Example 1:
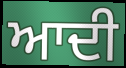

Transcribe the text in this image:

ਆਦੀ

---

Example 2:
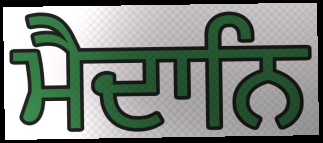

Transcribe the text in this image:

ਮੈਦਾਨਿ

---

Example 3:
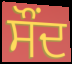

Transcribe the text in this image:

ਸੌਂਦ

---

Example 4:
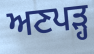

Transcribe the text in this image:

ਅਣਪੜ੍ਹ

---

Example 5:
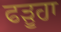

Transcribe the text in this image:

ਫੜੂਹਾ